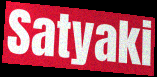
Satyaki